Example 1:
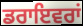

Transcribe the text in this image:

ਡਰਾਇਵਰਾਂ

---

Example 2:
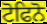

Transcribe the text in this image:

ਟੋਫਿਨੋ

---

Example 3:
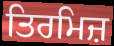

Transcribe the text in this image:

ਤਿਰਮਿਜ਼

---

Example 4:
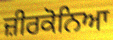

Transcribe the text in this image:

ਜ਼ੀਰਕੋਨਿਆ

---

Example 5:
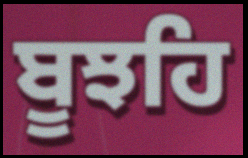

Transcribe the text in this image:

ਬੂਝਹਿ